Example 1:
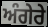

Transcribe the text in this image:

ਅੰਗੇਰੇ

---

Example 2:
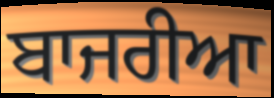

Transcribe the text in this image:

ਬਾਜਰੀਆ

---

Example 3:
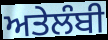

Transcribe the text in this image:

ਅਤੇਲੰਬੀ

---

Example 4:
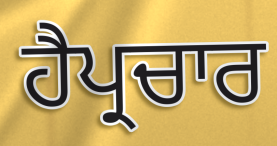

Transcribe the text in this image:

ਹੈਪ੍ਰਚਾਰ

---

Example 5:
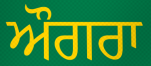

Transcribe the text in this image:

ਔਗਰਾ